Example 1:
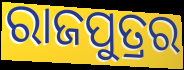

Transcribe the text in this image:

ରାଜପୁତ୍ରର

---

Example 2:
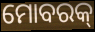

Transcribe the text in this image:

ମୋବରକ୍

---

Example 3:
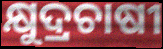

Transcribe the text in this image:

କ୍ଷୁଦ୍ରଚାଷୀ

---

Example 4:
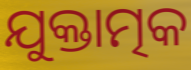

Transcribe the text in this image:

ଯୁକ୍ତାତ୍ମକ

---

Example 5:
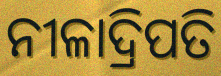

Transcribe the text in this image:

ନୀଳାଦ୍ରିପତି